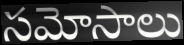
సమోసాలు